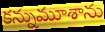
కన్నుమూశాను